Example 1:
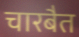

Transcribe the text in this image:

चारबैत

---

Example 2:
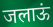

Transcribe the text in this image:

जलाऊं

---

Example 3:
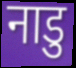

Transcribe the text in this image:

नाडु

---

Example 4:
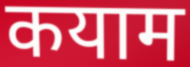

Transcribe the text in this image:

कयाम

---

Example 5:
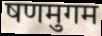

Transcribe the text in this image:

षणमुगम